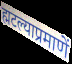
ह्मटल्याप्रमाणें